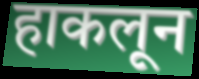
हाकलून